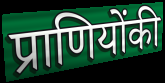
प्राणियोंकी